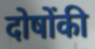
दोषोंकी